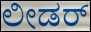
ಲೀಡರ್